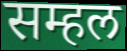
सम्हल